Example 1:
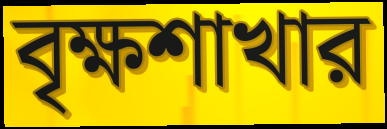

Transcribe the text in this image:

বৃক্ষশাখার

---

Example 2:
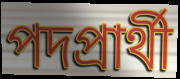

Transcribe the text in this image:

পদপ্রার্থী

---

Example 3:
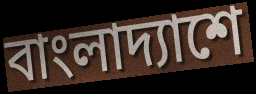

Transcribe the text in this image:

বাংলাদ্যাশে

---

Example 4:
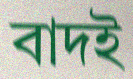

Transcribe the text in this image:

বাদই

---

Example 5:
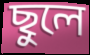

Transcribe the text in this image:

ছুলে